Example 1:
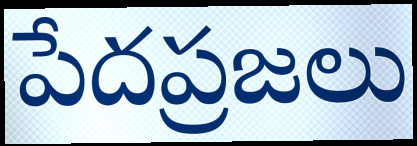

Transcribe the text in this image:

పేదప్రజలు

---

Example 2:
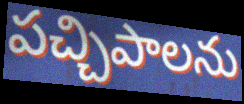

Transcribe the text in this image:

పచ్చిపాలను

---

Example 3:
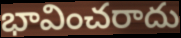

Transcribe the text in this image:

భావించరాదు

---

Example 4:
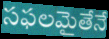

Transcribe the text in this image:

సఫలమైతేనే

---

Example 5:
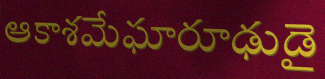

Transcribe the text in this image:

ఆకాశమేఘారూఢుడై